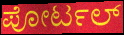
ಪೋರ್ಟಲ್